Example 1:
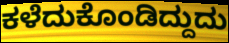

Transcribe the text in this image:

ಕಳೆದುಕೊಂಡಿದ್ದುದು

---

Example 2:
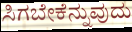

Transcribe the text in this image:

ಸಿಗಬೇಕೆನ್ನುವುದು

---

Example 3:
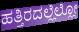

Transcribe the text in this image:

ಹತ್ತಿರದಲ್ಲೆಲ್ಲೋ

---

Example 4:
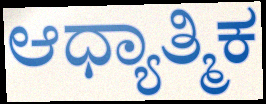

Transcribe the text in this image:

ಆಧ್ಯಾತ್ಮಿಕ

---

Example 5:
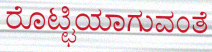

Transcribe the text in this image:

ರೊಟ್ಟಿಯಾಗುವಂತೆ